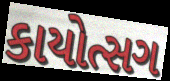
કાયોત્સગ